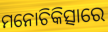
ମନୋଚିକିତ୍ସାରେ